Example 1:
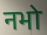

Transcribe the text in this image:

नभो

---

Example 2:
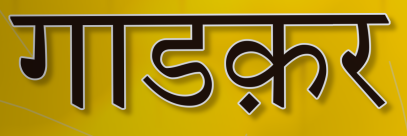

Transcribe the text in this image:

गाडक़र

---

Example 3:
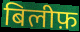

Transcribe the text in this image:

बिलीफ़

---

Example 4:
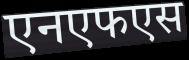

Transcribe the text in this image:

एनएफएस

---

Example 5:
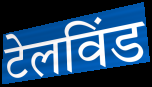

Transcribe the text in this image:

टेलविंड